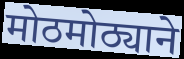
मोठमोठ्याने